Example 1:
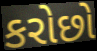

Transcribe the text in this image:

કરોછો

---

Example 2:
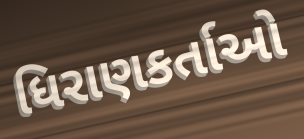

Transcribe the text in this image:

ધિરાણકર્તાઓ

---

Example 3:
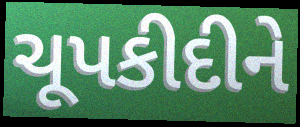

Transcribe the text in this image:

ચૂપકીદીને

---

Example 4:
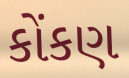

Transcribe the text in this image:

કોંકણ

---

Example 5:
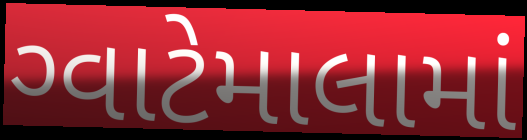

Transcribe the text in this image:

ગ્વાટેમાલામાં